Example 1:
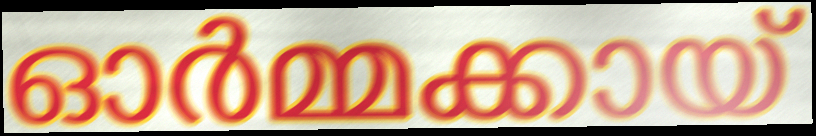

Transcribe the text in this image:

ഓർമ്മക്കായ്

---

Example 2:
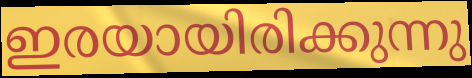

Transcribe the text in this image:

ഇരയായിരിക്കുന്നു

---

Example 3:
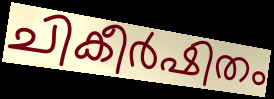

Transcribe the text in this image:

ചികീർഷിതം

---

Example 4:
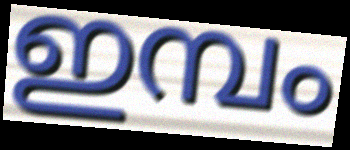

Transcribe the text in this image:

ഇമ്പം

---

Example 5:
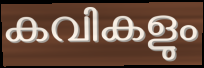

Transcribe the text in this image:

കവികളും